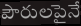
పౌరులపైనే